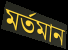
মর্তমান